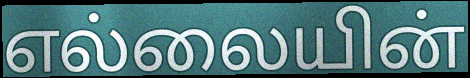
எல்லையின்